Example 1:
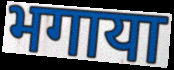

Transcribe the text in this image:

भगाया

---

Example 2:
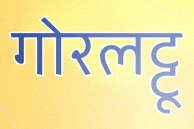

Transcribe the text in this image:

गोरलट्टू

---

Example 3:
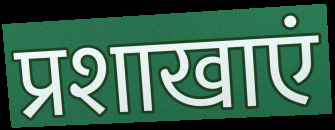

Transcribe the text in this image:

प्रशाखाएं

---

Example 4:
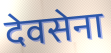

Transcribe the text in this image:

देवसेना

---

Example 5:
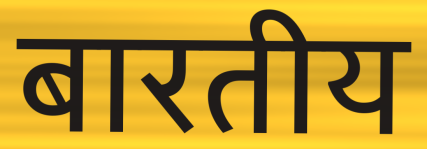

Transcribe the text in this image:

बारतीय